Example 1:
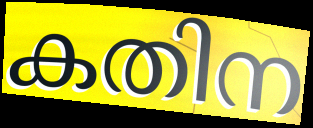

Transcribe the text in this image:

കതിന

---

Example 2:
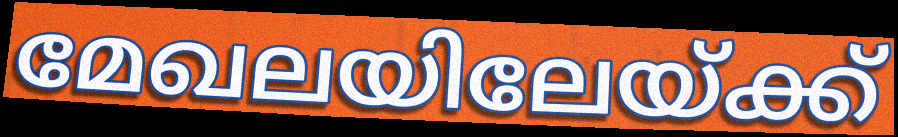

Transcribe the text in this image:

മേഖലയിലേയ്ക്ക്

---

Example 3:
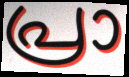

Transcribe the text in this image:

പ്രാ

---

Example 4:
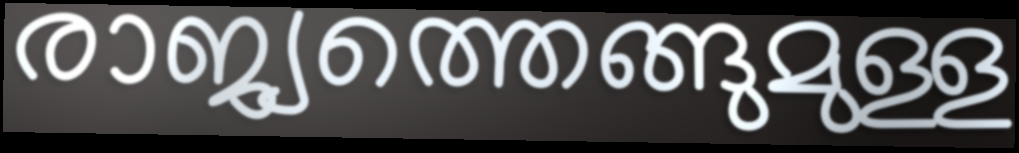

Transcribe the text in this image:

രാജ്യത്തെങ്ങുമുള്ള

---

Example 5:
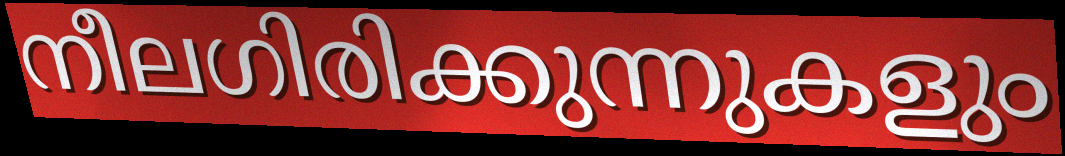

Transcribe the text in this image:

നീലഗിരിക്കുന്നുകളും